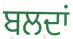
ਬਲਦਾਂ